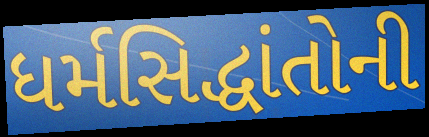
ધર્મસિદ્ધાંતોની